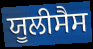
ਯੂਲੀਸੈਸ